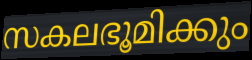
സകലഭൂമിക്കും